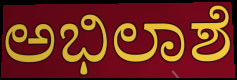
ಅಭಿಲಾಶೆ